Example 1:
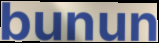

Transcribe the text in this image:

bunun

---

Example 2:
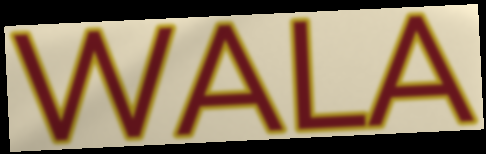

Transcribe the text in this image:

WALA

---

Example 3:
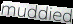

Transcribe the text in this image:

muddied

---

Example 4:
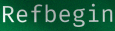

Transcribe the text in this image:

Refbegin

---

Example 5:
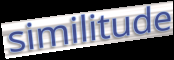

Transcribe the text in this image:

similitude